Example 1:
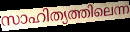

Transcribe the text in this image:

സാഹിത്യത്തിലെന്ന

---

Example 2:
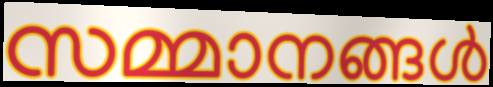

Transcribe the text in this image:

സമ്മാനങ്ങൾ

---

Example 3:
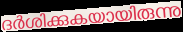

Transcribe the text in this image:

ദർശിക്കുകയായിരുന്നു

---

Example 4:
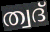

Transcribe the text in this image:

ത്വദ്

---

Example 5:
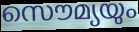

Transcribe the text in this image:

സൌമ്യയും